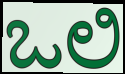
ಒಲಿ